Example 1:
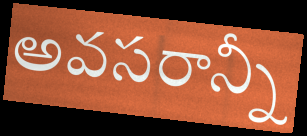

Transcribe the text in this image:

అవసరాన్నీ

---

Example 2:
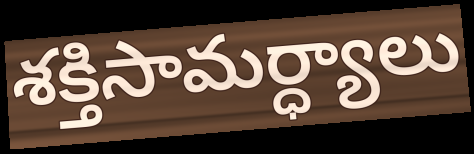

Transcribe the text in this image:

శక్తిసామర్ధ్యాలు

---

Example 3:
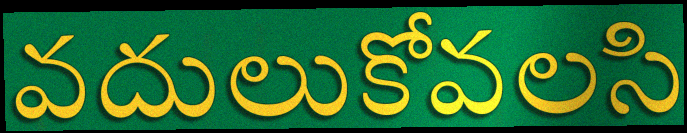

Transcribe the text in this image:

వదులుకోవలసి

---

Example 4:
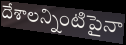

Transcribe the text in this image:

దేశాలన్నింటిపైనా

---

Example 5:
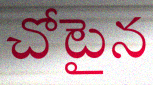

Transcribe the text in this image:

చోటైన